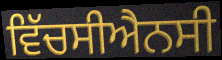
ਵਿੱਚਸੀਐਨਸੀ